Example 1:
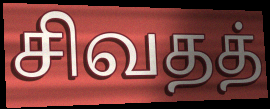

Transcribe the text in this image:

சிவதத்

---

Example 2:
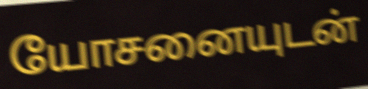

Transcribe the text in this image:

யோசனையுடன்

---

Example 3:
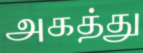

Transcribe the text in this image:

அகத்து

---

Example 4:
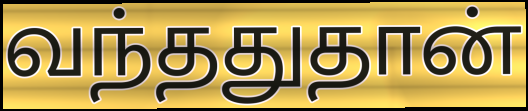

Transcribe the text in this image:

வந்ததுதான்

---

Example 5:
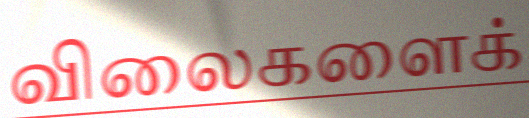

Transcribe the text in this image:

விலைகளைக்